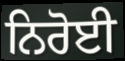
ਨਿਰੋਈ